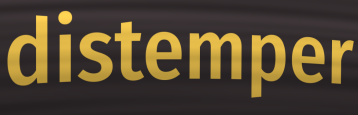
distemper